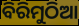
ବିରିମୁଠିଆ